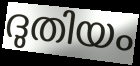
ദുതിയം